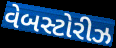
વેબસ્ટોરીઝ